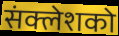
संक्लेशको